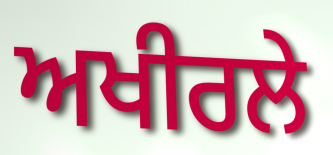
ਅਖੀਰਲੇ